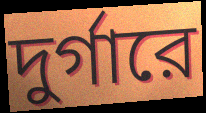
দুর্গারে